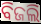
ବିଜଲି